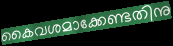
കൈവശമാക്കേണ്ടതിനു